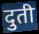
दुती